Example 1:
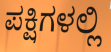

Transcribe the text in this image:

ಪಕ್ಷಿಗಳಲ್ಲಿ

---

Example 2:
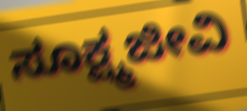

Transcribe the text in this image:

ಸೂಕ್ಷ್ಮಜೀವಿ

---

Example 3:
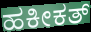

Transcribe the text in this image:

ಹಕೀಕತ್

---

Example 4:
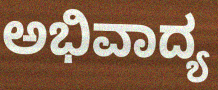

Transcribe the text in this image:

ಅಭಿವಾದ್ಯ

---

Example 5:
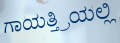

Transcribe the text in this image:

ಗಾಯತ್ತ್ರಿಯಲ್ಲಿ